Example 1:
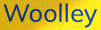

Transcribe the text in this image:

Woolley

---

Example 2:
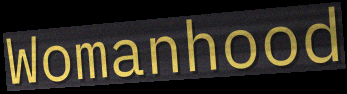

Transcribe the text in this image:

Womanhood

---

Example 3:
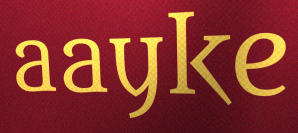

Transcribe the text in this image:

aayke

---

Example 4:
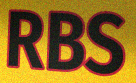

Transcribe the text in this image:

RBS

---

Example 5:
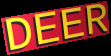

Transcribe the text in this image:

DEER